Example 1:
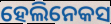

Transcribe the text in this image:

ହେଲିନେକସ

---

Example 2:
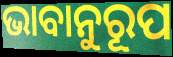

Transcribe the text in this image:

ଭାବାନୁରୂପ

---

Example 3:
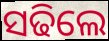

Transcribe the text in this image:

ସଢିଲେ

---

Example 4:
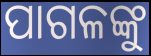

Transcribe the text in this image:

ପାଗଳଙ୍କୁ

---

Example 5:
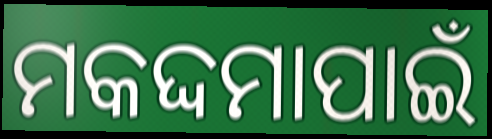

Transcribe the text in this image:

ମକଦ୍ଦମାପାଇଁ